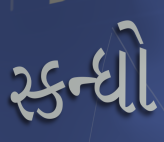
સ્કન્ધો